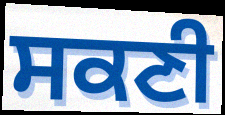
ਸਕਣੀ